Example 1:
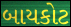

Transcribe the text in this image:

બાયકોટ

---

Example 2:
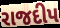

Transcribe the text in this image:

રાજદીપ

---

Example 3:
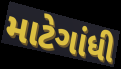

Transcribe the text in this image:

માટેગાંધી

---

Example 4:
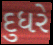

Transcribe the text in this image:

દુધરે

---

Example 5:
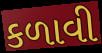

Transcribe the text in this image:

કળાવી